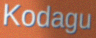
Kodagu